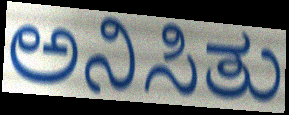
ಅನಿಸಿತು